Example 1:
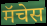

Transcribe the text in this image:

मॅचेस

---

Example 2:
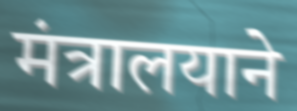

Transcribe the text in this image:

मंत्रालयाने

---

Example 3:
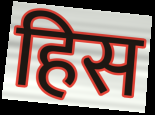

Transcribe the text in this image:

हिस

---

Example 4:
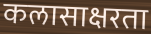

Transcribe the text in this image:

कलासाक्षरता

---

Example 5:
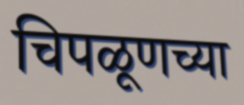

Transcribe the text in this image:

चिपळूणच्या